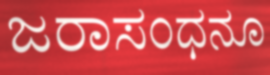
ಜರಾಸಂಧನೂ